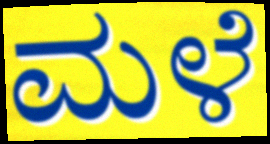
ಮಳೆ